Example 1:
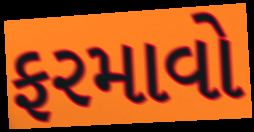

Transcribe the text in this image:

ફરમાવો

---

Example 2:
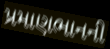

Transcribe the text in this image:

પ્રમાણભાનની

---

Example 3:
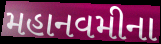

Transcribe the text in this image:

મહાનવમીના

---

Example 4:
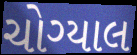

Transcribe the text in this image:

ચોગ્યાલ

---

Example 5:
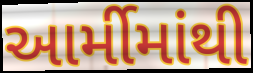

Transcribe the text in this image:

આર્મીમાંથી